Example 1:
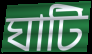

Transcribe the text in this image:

ঘাটি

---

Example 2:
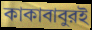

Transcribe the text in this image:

কাকাবাবুরই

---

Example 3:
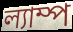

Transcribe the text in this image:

ল্যাম্প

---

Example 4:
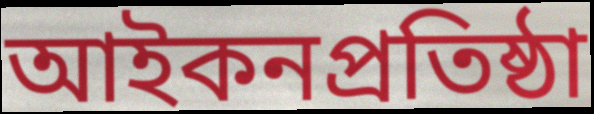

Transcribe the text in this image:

আইকনপ্রতিষ্ঠা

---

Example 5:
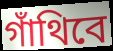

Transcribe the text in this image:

গাঁথিবে